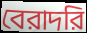
বেরাদরি